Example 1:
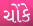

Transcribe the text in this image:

ચોંકે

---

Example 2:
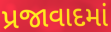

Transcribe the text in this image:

પ્રજાવાદમાં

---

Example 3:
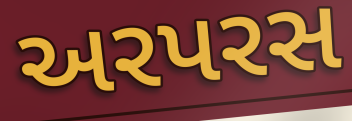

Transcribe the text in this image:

અરપરસ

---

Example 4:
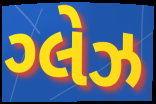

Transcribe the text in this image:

ગ્લેઝ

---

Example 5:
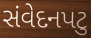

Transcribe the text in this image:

સંવેદનપટુ